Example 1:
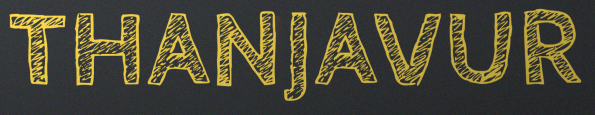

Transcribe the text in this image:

THANJAVUR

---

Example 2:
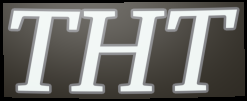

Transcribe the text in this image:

THT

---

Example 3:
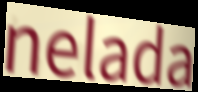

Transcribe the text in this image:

nelada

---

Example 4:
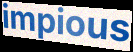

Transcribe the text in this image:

impious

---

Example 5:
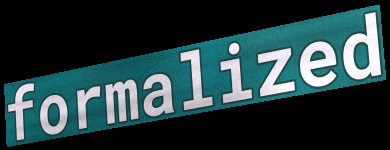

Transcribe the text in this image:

formalized